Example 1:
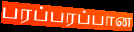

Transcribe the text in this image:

பரப்பரப்பான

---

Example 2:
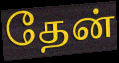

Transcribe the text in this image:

தேன்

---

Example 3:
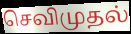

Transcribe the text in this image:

செவிமுதல்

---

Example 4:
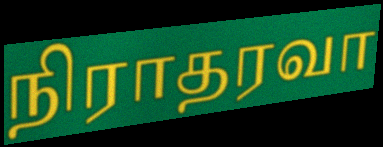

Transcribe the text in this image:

நிராதரவா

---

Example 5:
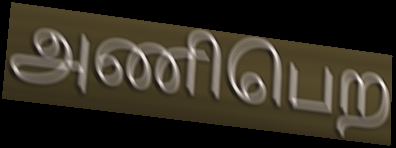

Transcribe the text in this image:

அணிபெற